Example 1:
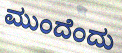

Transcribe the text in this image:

ಮುಂದೆಂದು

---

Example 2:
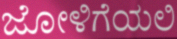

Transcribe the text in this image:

ಜೋಳಿಗೆಯಲಿ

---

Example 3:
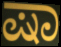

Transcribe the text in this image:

ಷಾ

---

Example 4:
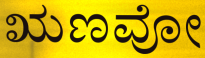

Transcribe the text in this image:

ಋಣವೋ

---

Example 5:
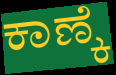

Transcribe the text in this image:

ಕಾಣ್ಕೆ